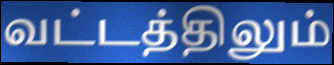
வட்டத்திலும்